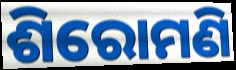
ଶିରୋମଣି